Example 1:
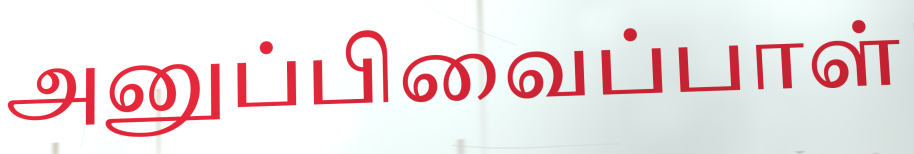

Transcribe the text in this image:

அனுப்பிவைப்பாள்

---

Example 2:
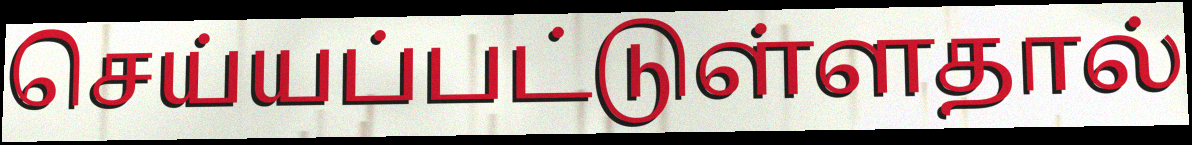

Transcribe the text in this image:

செய்யப்பட்டுள்ளதால்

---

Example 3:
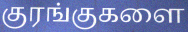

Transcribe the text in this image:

குரங்குகளை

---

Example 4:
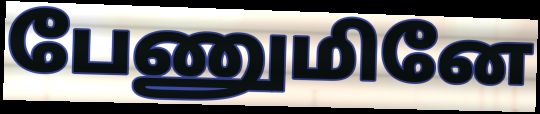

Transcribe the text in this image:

பேணுமினே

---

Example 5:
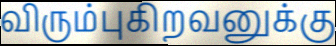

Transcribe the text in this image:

விரும்புகிறவனுக்கு